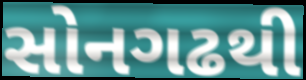
સોનગઢથી